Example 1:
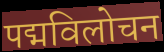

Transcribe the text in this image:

पद्मविलोचन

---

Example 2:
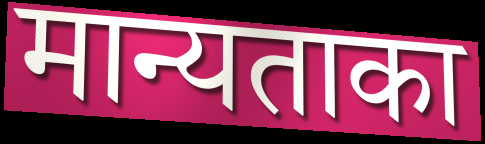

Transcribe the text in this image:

मान्यताका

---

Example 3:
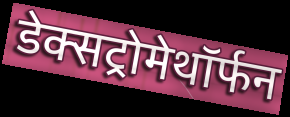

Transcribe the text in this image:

डेक्सट्रोमेथॉर्फन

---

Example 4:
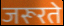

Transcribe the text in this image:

जरूरते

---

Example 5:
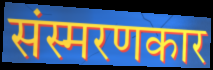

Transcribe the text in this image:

संस्मरणकार